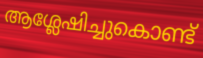
ആശ്ലേഷിച്ചുകൊണ്ട്